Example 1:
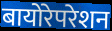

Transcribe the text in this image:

बायोरेपरेशन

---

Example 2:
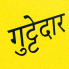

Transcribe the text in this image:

गुट्टेदार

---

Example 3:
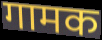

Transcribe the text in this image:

गामक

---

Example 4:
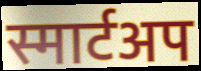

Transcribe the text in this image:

स्मार्टअप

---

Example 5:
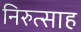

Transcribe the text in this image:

निरुत्साह